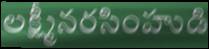
లక్ష్మీనరసింహుడి